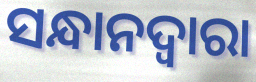
ସନ୍ଧାନଦ୍ୱାରା